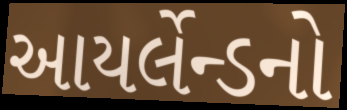
આયર્લેન્ડનો